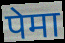
पेमा